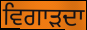
ਵਿਗਾੜਦਾ